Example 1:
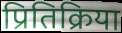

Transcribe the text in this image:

प्रितिक्रिया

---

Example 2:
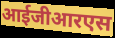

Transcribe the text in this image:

आईजीआरएस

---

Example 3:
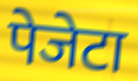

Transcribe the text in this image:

पेजेटा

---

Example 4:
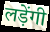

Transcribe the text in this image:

लड़ेंगी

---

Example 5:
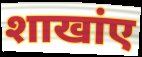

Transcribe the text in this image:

शाखांए